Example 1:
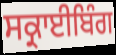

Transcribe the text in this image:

ਸਕ੍ਰਾਈਬਿੰਗ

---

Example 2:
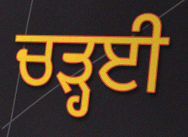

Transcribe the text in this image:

ਚੜ੍ਹਈ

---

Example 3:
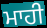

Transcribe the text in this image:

ਮਾਹੀ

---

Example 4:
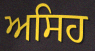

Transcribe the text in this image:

ਅਸਿਹ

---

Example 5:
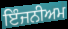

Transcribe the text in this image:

ਇੰਜਨੀਅਮ